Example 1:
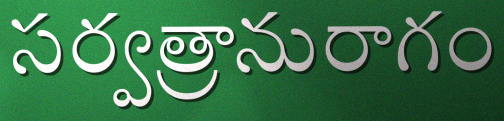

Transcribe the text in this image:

సర్వత్రానురాగం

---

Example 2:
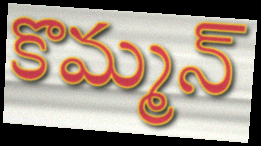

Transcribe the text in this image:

కొమ్మన్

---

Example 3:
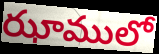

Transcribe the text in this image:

ఝాములో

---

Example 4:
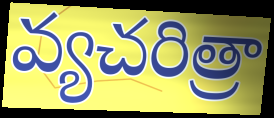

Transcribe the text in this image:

వ్యచరిత్రా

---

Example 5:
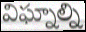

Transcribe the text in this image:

విఘ్నాల్ని